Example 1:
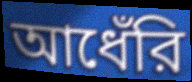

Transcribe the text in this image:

আধেঁরি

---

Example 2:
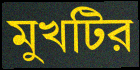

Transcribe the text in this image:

মুখটির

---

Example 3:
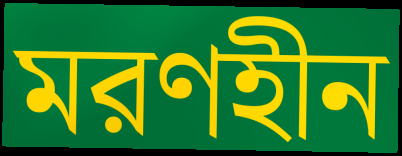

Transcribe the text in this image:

মরণহীন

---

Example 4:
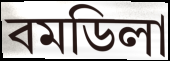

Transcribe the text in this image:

বমডিলা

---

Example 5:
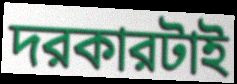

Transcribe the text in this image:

দরকারটাই